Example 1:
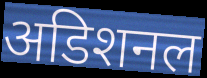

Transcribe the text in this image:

अडिशनल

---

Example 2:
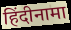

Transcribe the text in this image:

हिंदीनामा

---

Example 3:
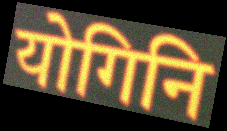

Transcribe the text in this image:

योगिनि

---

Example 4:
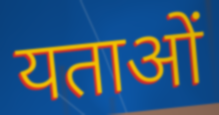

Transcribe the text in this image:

यताओं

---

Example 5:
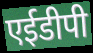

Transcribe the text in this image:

एईडीपी